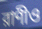
রাণীও